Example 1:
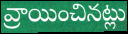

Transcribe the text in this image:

వ్రాయించినట్లు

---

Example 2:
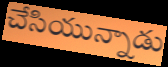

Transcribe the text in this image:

చేసియున్నాడు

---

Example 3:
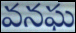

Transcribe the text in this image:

వనఘ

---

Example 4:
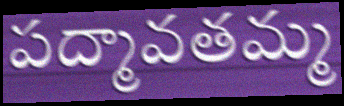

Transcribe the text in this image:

పద్మావతమ్మ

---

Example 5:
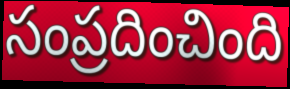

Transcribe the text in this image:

సంప్రదించింది